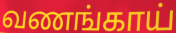
வணங்காய்